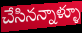
చేసినన్నాళ్ళూ